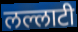
लल्लाटी